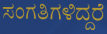
ಸಂಗತಿಗಳಿದ್ದರೆ